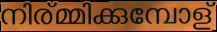
നിര്മ്മിക്കുമ്പോള്